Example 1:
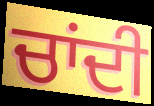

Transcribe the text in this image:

ਚਾਂਦੀ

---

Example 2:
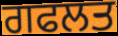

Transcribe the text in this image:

ਗਫਲਤ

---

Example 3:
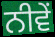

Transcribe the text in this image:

ਨੀਵੇਂ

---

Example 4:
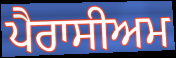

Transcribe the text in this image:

ਪੈਰਾਸੀਅਮ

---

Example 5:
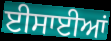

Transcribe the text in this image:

ਈਸਾਈਆਂ